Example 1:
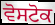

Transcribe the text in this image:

ਵੋਸਟੋਕ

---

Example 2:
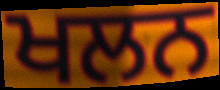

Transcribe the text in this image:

ਖਲਨ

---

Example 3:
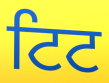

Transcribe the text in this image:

ਟਿਟ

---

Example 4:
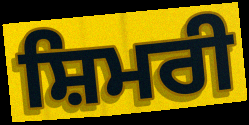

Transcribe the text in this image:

ਸ਼ਿਮਰੀ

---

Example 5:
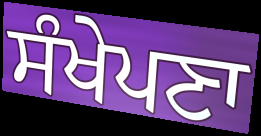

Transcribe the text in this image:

ਸੰਖੇਪਣਾ